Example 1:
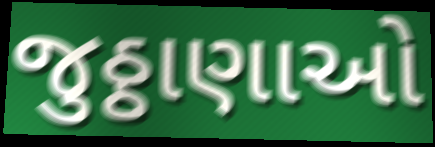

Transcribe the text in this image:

જુઠ્ઠાણાઓ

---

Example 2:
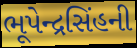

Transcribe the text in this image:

ભૂપેન્દ્રસિંહની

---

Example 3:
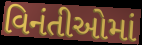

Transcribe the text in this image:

વિનંતીઓમાં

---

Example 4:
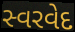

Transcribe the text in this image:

સ્વરવેદ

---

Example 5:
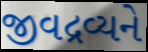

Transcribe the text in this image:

જીવદ્રવ્યને